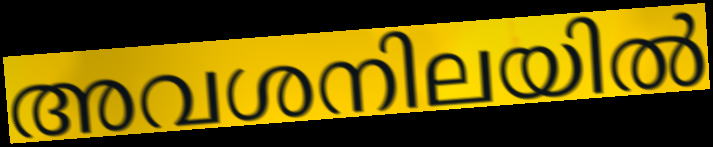
അവശനിലയിൽ